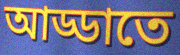
আড্ডাতে